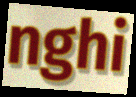
nghi